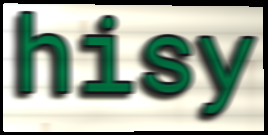
hisy